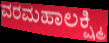
ವರಮಹಾಲಕ್ಷ್ಮಿ